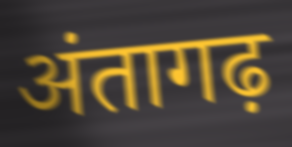
अंतागढ़